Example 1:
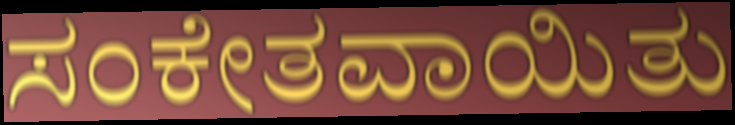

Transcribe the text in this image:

ಸಂಕೇತವಾಯಿತು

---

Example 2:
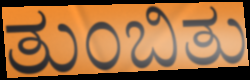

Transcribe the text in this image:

ತುಂಬಿತು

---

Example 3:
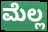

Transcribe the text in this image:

ಮೆಲ್ಲ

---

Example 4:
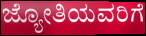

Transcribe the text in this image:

ಜ್ಯೋತಿಯವರಿಗೆ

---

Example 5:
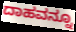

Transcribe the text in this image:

ದಾಹವನ್ನೂ